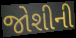
જોશીની